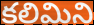
కలిమిని